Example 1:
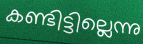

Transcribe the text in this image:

കണ്ടിട്ടില്ലെന്നു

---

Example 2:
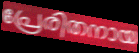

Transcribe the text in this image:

പ്രേരിതനായ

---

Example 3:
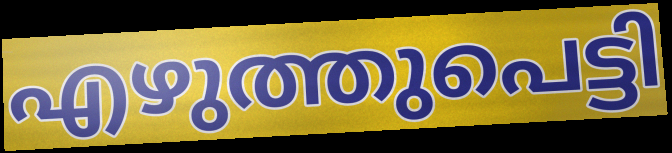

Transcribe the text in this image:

എഴുത്തുപെട്ടി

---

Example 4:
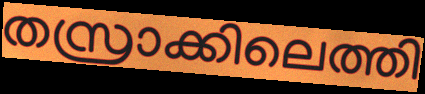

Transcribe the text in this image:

തസ്രാക്കിലെത്തി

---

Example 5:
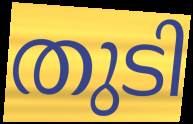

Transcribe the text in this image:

തുടി